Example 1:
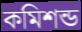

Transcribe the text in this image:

কমিশন্ড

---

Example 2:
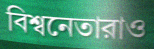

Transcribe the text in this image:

বিশ্বনেতারাও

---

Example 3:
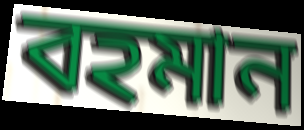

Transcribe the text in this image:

বহমান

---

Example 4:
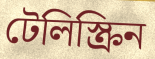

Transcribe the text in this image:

টেলিস্ক্রিন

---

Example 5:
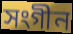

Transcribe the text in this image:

সংগীন